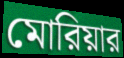
মোরিয়ার